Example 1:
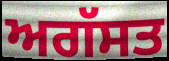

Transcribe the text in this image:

ਅਗੱਸਤ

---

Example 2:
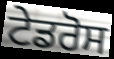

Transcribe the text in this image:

ਟੇਡਰੋਸ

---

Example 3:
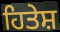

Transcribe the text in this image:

ਹਿਤੇਸ਼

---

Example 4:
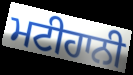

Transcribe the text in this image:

ਮਟੀਹਾਨੀ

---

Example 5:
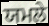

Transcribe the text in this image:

ਯਮਲੇ